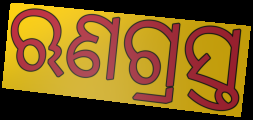
ଋଣଗ୍ରସ୍ତ